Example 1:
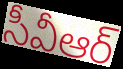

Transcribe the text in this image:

సీవీఆర్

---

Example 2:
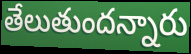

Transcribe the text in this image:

తేలుతుందన్నారు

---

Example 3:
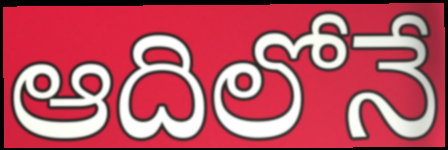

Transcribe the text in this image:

ఆదిలోనే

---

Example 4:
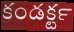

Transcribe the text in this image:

కండక్టర్‍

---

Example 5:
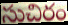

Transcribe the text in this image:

సుచిరం